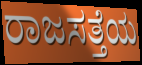
ರಾಜಸತ್ತೆಯ